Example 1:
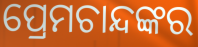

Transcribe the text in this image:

ପ୍ରେମଚାନ୍ଦଙ୍କର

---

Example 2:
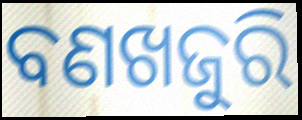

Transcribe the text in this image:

ବଣଖଜୁରି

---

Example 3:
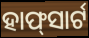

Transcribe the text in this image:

ହାଫ୍‍ସାର୍ଟ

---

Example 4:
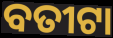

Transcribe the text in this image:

ବତୀଟା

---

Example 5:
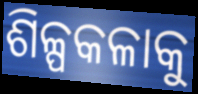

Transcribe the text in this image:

ଶିଳ୍ପକଳାକୁ